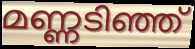
മണ്ണടിഞ്ഞ്